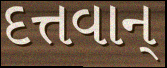
દત્તવાન્